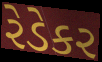
રેડેકર